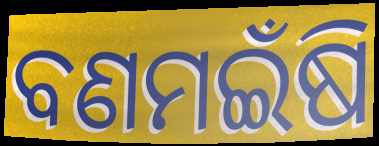
ବଣମଇଁଷି